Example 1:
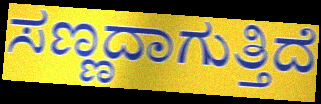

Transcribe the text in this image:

ಸಣ್ಣದಾಗುತ್ತಿದೆ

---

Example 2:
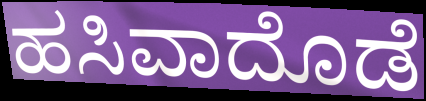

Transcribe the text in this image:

ಹಸಿವಾದೊಡೆ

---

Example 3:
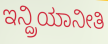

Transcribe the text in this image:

ಇನ್ದ್ರಿಯಾನೀತಿ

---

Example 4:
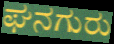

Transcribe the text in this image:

ಘನಗುರು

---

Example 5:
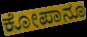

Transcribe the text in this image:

ಕೋಪಾನೂ